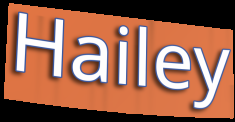
Hailey